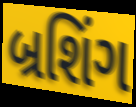
બ્રશિંગ